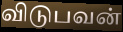
விடுபவன்